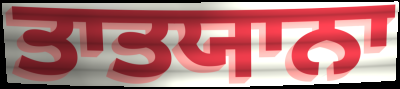
ਤਾਤਯਾਨਾ